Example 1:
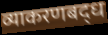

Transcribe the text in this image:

व्याकरणबद्ध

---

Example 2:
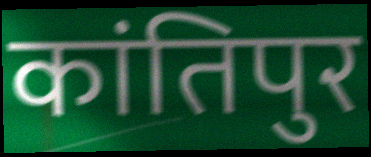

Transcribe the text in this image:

कांतिपुर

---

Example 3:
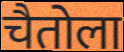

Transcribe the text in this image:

चैतोला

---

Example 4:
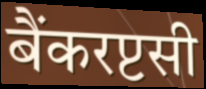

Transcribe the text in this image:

बैंकरप्टसी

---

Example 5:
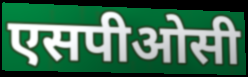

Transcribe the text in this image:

एसपीओसी